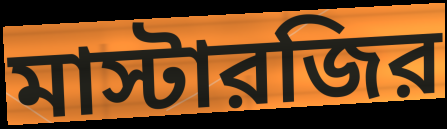
মাস্টারজির